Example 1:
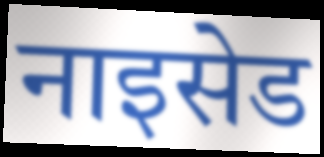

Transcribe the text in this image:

नाइसेड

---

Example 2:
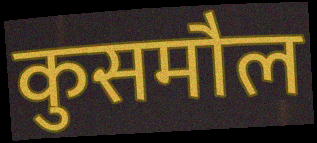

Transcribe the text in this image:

कुसमौल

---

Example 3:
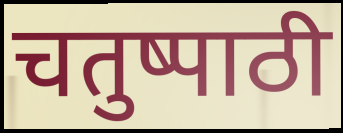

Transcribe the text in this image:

चतुष्पाठी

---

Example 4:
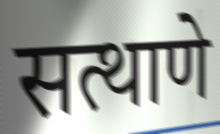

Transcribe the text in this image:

सत्थाणे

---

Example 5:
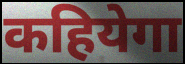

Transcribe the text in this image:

कहियेगा